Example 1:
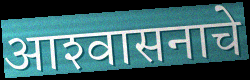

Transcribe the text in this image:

आश्वासनाचे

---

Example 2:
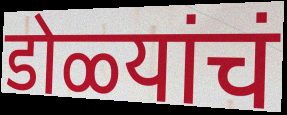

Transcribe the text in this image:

डोळ्यांचं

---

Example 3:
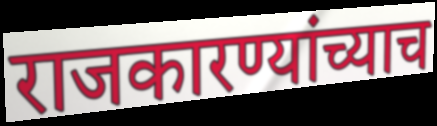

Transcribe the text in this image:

राजकारण्यांच्याच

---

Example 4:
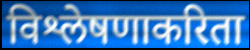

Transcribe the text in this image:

विश्लेषणाकरिता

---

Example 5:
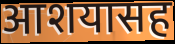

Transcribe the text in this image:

आशयासह